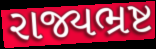
રાજ્યભ્રષ્ટ